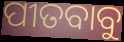
ପୀତବାବୁ